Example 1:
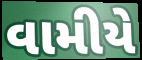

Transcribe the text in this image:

વામીયે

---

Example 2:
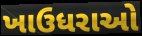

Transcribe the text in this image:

ખાઉધરાઓ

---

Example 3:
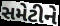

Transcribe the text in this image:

સમેટીને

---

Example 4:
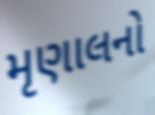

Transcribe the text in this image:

મૃણાલનો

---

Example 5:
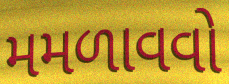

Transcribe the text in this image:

મમળાવવો